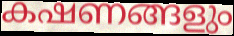
കഷണങ്ങളും